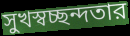
সুখস্বচ্ছন্দতার